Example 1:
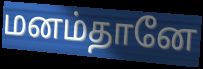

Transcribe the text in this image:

மனம்தானே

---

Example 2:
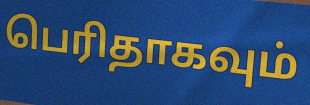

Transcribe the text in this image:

பெரிதாகவும்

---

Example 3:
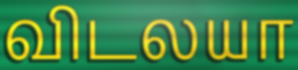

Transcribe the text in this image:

விடலயா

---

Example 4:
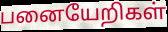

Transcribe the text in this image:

பனையேறிகள்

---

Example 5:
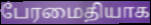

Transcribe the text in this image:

பேரமைதியாக